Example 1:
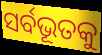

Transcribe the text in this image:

ସର୍ବଭୂତକୁ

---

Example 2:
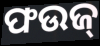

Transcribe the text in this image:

ଫଉଜ୍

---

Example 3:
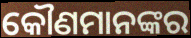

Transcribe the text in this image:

କୌଣମାନଙ୍କର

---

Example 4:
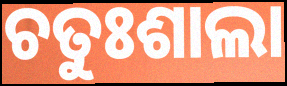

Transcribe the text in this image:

ଚତୁଃଶାଲା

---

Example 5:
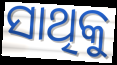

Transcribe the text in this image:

ସାଥିକୁ